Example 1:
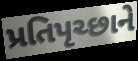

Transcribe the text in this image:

પ્રતિપૃચ્છાને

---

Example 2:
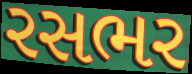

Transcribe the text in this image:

રસભર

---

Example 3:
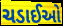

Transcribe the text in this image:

ચડાઈઓ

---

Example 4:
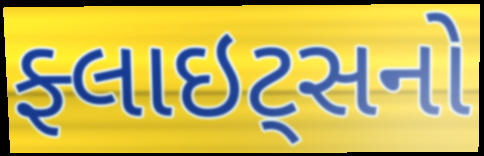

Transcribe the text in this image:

ફ્લાઇટ્સનો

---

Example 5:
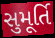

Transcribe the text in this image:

સુમૂર્તિ